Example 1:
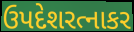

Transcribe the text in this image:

ઉપદેશરત્નાકર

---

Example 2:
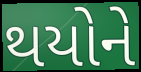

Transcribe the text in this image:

થયોને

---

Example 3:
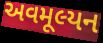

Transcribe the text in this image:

અવમૂલ્યન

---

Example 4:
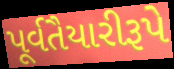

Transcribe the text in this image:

પૂર્વતૈયારીરૂપે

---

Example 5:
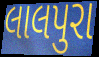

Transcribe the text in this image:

લાલપુરા